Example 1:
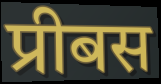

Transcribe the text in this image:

प्रीबस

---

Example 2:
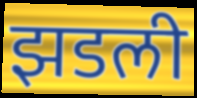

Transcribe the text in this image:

झडली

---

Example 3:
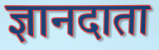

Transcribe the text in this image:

ज्ञानदाता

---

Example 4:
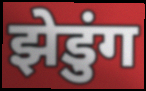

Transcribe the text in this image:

झेडुंग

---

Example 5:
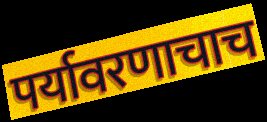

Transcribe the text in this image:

पर्यावरणाचाच